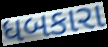
ધબકારા